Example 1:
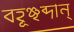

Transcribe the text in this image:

বহূঞ্ছব্দান্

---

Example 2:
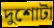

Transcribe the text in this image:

দুশোটা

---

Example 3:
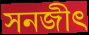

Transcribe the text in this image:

সনজীৎ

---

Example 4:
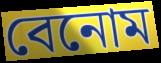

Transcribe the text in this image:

বেনোম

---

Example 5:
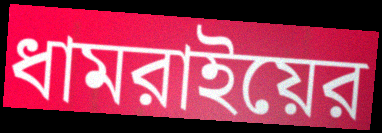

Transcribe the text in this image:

ধামরাইয়ের